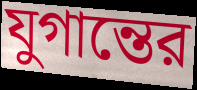
যুগান্তের